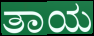
ತಾಯ